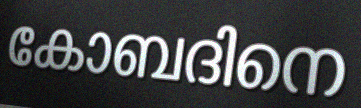
കോബദിനെ